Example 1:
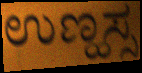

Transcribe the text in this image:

ಉಣ್ಹಸ್ಸ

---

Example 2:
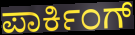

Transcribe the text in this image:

ಪಾರ್ಕಿಂಗ್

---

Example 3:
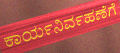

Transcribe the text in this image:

ಕಾರ್ಯನಿರ್ವಹಣೆಗೆ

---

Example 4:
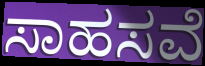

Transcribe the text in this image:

ಸಾಹಸವೆ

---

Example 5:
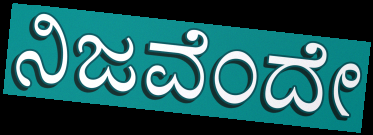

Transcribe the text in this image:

ನಿಜವೆಂದೇ